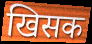
खिसक